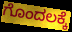
ಗೊಂದಲಕ್ಕೆ